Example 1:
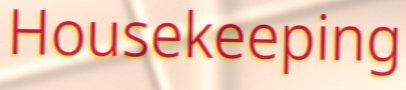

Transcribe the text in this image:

Housekeeping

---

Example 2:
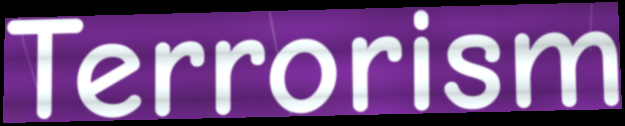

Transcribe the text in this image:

Terrorism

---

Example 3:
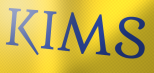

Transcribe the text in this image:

KIMS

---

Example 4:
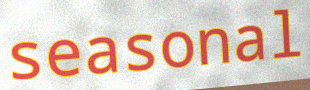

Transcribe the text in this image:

seasonal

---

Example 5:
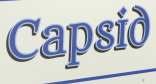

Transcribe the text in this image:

Capsid